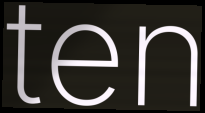
ten